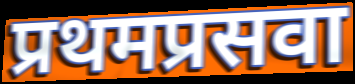
प्रथमप्रसवा